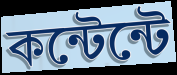
কন্টেন্টে